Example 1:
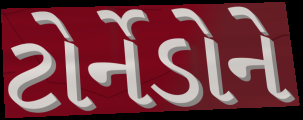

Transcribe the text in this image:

ટોર્નેડોને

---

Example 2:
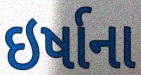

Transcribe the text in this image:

ઇર્ષાના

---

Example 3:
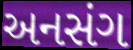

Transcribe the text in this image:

અનસંગ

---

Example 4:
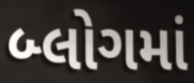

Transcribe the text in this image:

બ્લોગમાં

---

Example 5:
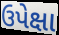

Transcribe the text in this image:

ઉપેક્ષા